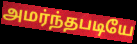
அமர்ந்தபடியே